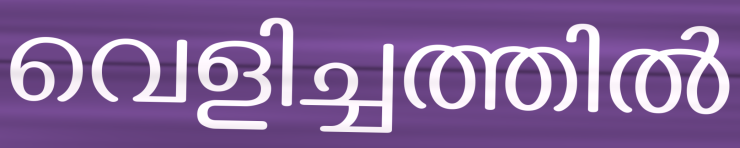
വെളിച്ചത്തിൽ